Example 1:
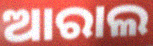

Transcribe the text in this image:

ଆରାଲ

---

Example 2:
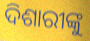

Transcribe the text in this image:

ଦିଶାରୀଙ୍କୁ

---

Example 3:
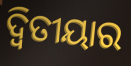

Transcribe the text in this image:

ଦ୍ଵିତୀୟାର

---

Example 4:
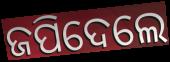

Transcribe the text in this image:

ଜପିଦେଲେ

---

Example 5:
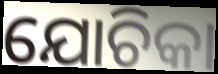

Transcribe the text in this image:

ଯୋଚିକା